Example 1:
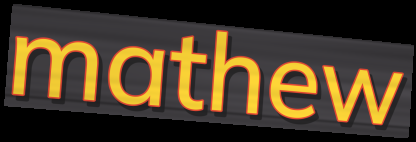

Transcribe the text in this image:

mathew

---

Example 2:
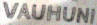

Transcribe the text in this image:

VAUHUNI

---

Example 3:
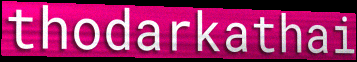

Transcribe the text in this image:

thodarkathai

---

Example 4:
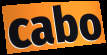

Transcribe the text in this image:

cabo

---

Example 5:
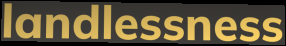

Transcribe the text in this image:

landlessness